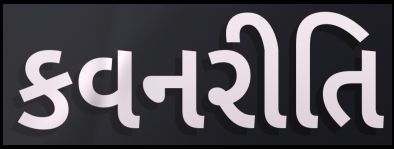
કવનરીતિ